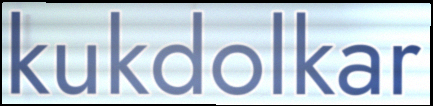
kukdolkar